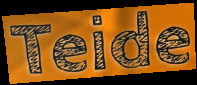
Teide